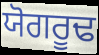
ਯੋਗਰੂਢ